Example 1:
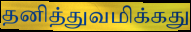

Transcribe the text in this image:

தனித்துவமிக்கது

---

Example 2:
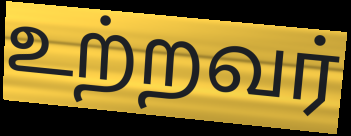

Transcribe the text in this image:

உற்றவர்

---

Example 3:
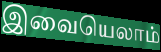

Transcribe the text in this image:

இவையெலாம்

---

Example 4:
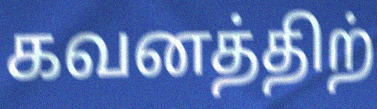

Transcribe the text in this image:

கவனத்திற்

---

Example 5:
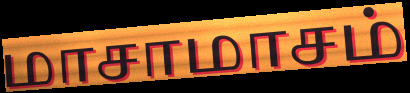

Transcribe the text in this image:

மாசாமாசம்